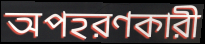
অপহরণকারী